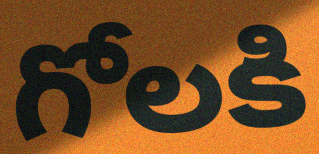
గోలకి